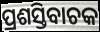
ପ୍ରଶସ୍ତିବାଚକ